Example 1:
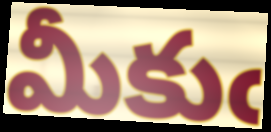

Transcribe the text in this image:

మీకుఁ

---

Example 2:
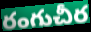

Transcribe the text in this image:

రంగుచీర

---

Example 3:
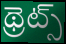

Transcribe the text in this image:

థ్రెట్స్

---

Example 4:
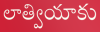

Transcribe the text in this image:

లాత్వియాకు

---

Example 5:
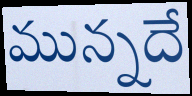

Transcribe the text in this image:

మున్నదే